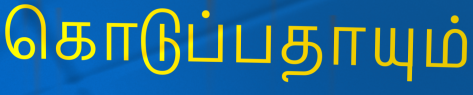
கொடுப்பதாயும்